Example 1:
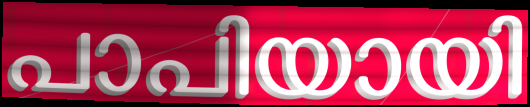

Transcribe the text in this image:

പാപിയായി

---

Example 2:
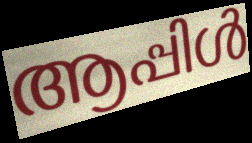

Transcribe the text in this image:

ആപ്പിൾ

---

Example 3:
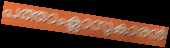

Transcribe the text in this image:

പത്താംക്ലാസുകാരൻ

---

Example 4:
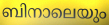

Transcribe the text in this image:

ബിനാലെയും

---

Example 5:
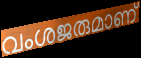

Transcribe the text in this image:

വംശജരുമാണ്